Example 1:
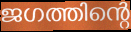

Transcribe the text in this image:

ജഗത്തിന്റെ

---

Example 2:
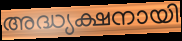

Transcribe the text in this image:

അദ്ധ്യക്ഷനായി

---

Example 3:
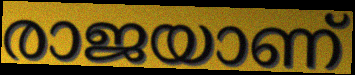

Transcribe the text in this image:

രാജയാണ്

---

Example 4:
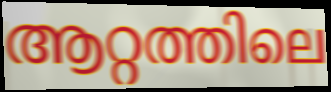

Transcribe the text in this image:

ആറ്റത്തിലെ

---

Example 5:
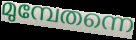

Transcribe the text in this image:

മുമ്പേതന്നെ